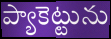
ప్యాకెట్టును